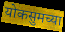
योकसुमच्या